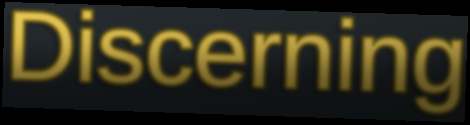
Discerning